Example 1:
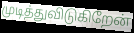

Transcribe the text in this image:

முடித்துவிடுகிறேன்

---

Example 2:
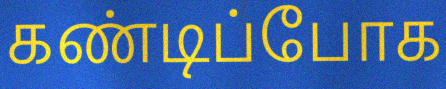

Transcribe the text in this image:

கண்டிப்போக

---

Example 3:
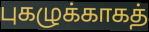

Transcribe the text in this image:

புகழுக்காகத்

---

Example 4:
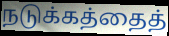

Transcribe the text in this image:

நடுக்கத்தைத்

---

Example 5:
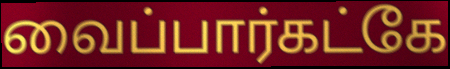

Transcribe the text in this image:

வைப்பார்கட்கே